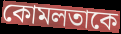
কোমলতাকে